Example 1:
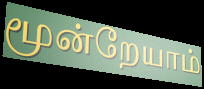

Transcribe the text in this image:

மூன்றேயாம்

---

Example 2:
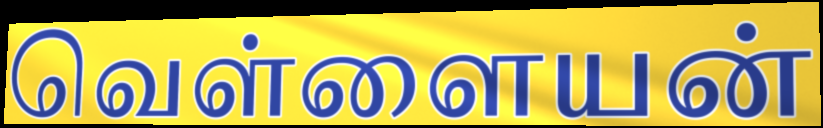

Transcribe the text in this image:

வெள்ளையன்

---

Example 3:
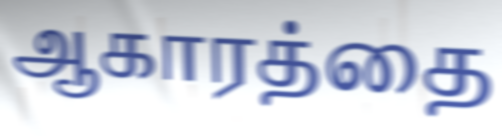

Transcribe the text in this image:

ஆகாரத்தை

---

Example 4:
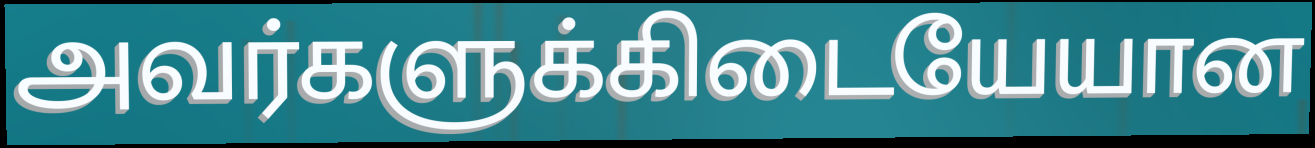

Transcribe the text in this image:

அவர்களுக்கிடையேயான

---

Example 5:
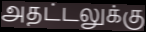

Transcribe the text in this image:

அதட்டலுக்கு